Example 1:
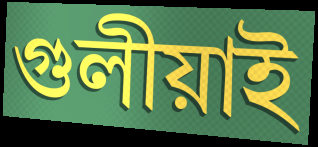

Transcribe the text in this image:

গুলীয়াই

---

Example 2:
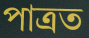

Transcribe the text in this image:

পাত্ৰত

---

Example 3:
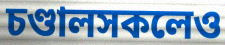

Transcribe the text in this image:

চণ্ডালসকলেও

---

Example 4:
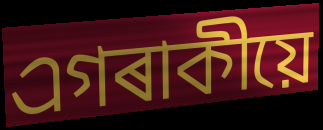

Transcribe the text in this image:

এগৰাকীয়ে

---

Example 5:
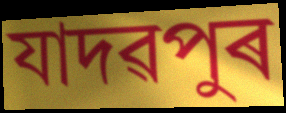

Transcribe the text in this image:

যাদৱপুৰ